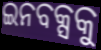
ଇନବକ୍ସକୁ